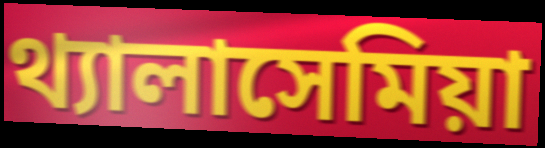
থ্যালাসেমিয়া